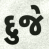
દુજે